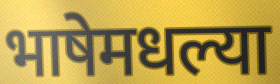
भाषेमधल्या